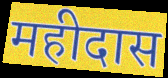
महीदास